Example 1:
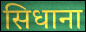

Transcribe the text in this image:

सिधाना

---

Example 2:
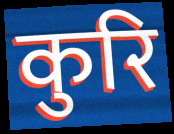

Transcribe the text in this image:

कुरि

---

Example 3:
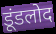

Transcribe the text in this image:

डूंडलोद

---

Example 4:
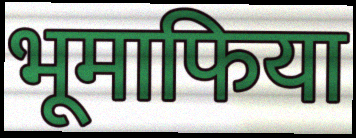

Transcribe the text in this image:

भूमाफिया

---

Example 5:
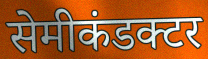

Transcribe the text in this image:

सेमीकंडक्टर